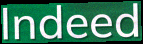
Indeed